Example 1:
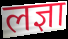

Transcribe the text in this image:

लज्ञा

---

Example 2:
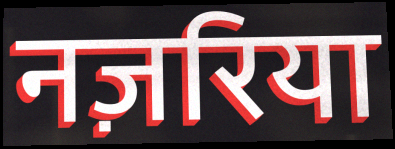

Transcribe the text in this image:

नज़रिया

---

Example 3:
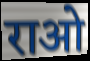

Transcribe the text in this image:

राओ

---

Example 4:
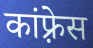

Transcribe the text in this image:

कांफ़्रेस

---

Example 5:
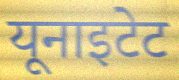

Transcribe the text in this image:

यूनाइटेट